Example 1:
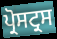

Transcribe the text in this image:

ਪ੍ਰੋਸਟ੍ਰਸ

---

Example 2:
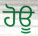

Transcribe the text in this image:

ਹੋਊ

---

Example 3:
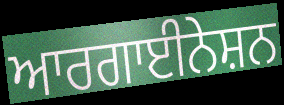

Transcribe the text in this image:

ਆਰਗਾਈਨੇਸ਼ਨ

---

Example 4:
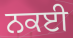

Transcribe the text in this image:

ਨਕਈ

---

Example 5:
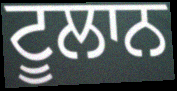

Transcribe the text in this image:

ਟੂਲਾਨ